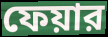
ফেয়ার